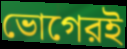
ভোগেরই